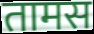
तामस